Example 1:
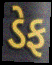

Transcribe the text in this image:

ડેફ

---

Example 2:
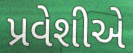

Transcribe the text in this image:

પ્રવેશીએ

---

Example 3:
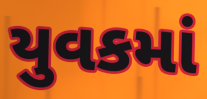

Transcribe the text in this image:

યુવકમાં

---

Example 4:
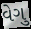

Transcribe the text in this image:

વેગુ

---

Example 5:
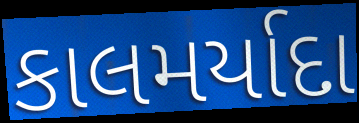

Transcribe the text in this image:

કાલમર્યાદા